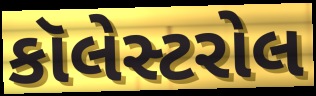
કૉલેસ્ટરોલ